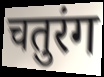
चतुरंग